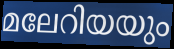
മലേറിയയും